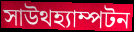
সাউথহ্যাম্পটন